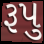
રૂપુ